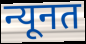
न्यूनत